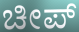
ಚೀಪ್